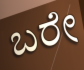
ಬರೇ